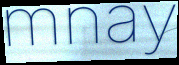
mnay